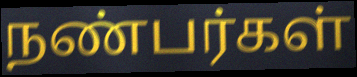
நண்பர்கள்